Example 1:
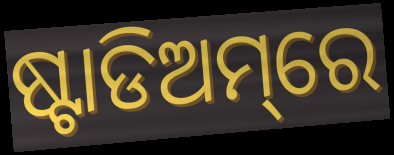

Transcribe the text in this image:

ଷ୍ଟାଡିଅମ୍‌ରେ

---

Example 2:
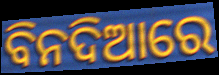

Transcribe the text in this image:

ବିନଦିଆରେ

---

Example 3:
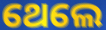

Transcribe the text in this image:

ଥେଲେ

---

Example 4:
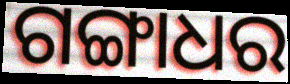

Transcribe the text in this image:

ଗଙ୍ଗାଧର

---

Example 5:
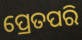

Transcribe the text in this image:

ପ୍ରେତପରି